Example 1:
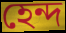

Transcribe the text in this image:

হেন্দ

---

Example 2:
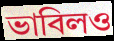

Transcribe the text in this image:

ভাবিলও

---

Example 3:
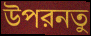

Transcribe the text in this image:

উপরনতু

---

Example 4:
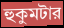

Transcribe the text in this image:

হুকুমটার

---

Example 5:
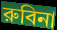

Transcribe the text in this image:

রুবিনা